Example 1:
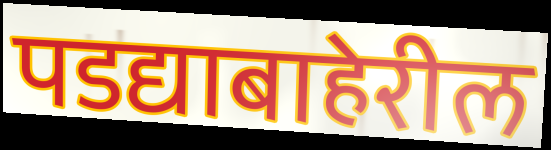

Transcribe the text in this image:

पडद्याबाहेरील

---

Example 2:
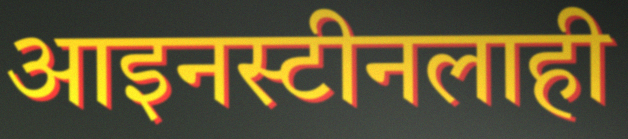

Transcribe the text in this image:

आइनस्टीनलाही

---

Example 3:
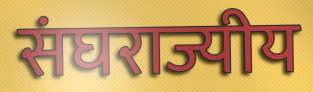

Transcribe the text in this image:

संघराज्यीय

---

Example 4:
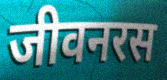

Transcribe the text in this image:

जीवनरस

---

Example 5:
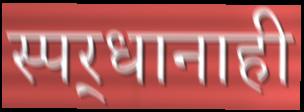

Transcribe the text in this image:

स्पर्धानाही